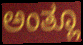
ಅಂತ್ಲೂ